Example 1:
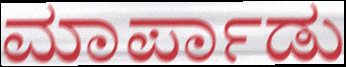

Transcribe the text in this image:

ಮಾರ್ಪಾಡು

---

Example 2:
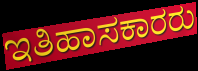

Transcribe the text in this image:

ಇತಿಹಾಸಕಾರರು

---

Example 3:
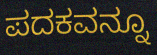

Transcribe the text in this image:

ಪದಕವನ್ನೂ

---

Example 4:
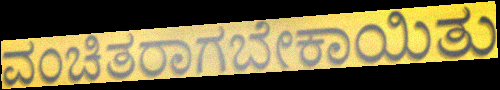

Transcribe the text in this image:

ವಂಚಿತರಾಗಬೇಕಾಯಿತು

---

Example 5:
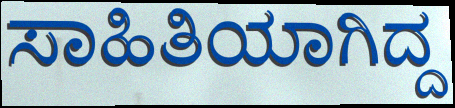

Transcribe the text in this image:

ಸಾಹಿತಿಯಾಗಿದ್ದ